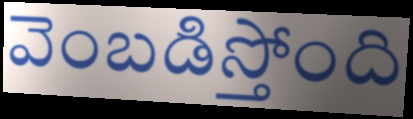
వెంబడిస్తోంది